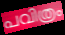
പവിത്രം